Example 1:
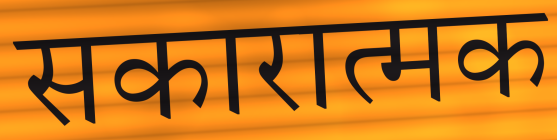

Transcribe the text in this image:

सकारात्मक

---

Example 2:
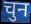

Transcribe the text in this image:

चुन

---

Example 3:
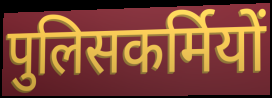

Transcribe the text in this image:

पुलिसकर्मियों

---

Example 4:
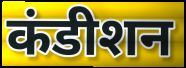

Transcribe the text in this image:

कंडीशन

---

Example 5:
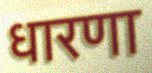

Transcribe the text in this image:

धारणा